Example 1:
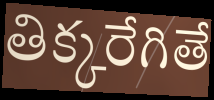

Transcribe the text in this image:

తిక్కరేగితే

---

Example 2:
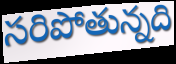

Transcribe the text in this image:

సరిపోతున్నది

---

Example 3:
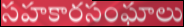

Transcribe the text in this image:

సహకారసంఘాలు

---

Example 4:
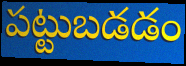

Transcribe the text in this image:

పట్టుబడడం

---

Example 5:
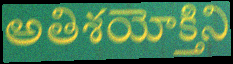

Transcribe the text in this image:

అతిశయోక్తిని